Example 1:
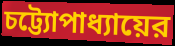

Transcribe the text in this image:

চট্ট্যোপাধ্যায়ের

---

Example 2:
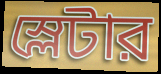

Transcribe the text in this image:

স্লেটার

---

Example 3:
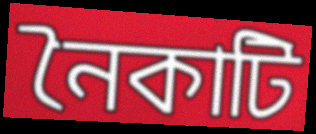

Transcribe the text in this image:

নৈকাটি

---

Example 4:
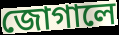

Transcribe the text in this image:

জোগালে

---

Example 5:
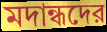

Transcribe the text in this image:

মদান্ধদের